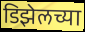
डिझेलच्या